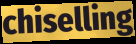
chiselling